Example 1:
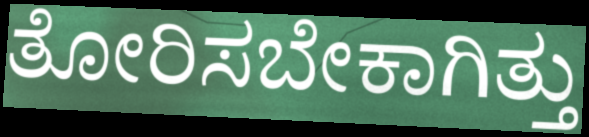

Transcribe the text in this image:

ತೋರಿಸಬೇಕಾಗಿತ್ತು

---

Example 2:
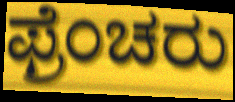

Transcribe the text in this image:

ಫ್ರೆಂಚರು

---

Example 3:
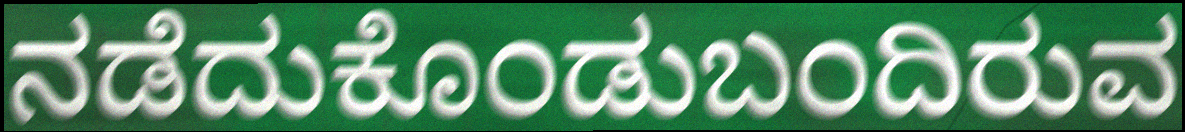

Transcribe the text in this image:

ನಡೆದುಕೊಂಡುಬಂದಿರುವ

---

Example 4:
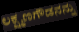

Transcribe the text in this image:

ಲಕ್ಷ್ಮಣಗೌಡನನ್ನು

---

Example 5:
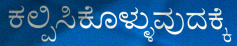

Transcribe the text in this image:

ಕಲ್ಪಿಸಿಕೊಳ್ಳುವುದಕ್ಕೆ